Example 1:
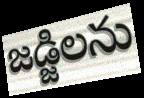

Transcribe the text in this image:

జడ్జిలను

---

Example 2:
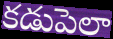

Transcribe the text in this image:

కడుపెలా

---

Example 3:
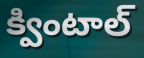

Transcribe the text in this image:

క్వింటాల్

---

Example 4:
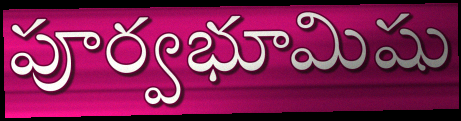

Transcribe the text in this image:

పూర్వభూమిషు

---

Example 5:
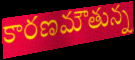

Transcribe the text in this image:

కారణమౌతున్న